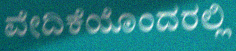
ವೇದಿಕೆಯೊಂದರಲ್ಲಿ